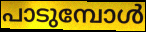
പാടുമ്പോൾ